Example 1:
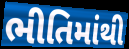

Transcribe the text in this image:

ભીતિમાંથી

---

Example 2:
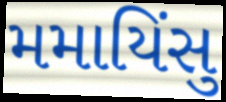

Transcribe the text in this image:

મમાયિંસુ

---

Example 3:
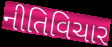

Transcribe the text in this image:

નીતિવિચાર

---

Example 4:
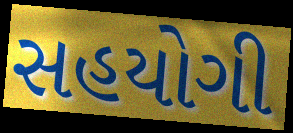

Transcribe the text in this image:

સહયોગી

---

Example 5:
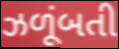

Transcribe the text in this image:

ઝળૂંબતી